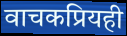
वाचकप्रियही